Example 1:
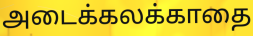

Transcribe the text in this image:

அடைக்கலக்காதை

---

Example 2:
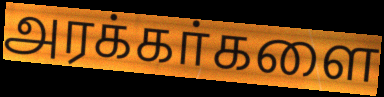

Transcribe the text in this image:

அரக்கர்களை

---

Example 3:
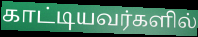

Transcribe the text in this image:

காட்டியவர்களில்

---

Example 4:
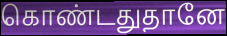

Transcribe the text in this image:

கொண்டதுதானே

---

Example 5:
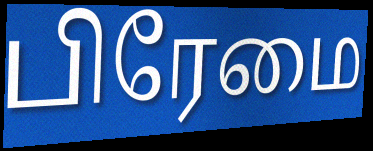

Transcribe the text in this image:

பிரேமை